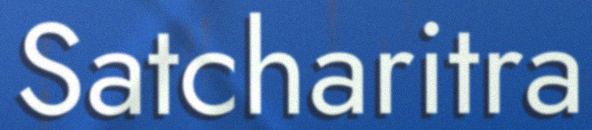
Satcharitra